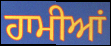
ਹਾਮੀਆਂ